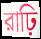
রাঢ়ি